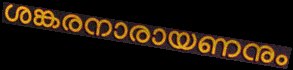
ശങ്കരനാരായണനും